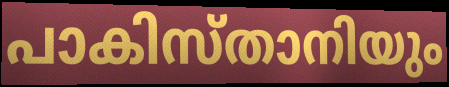
പാകിസ്താനിയും